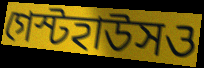
গেস্টহাউসও